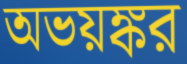
অভয়ঙ্কর